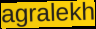
agralekh